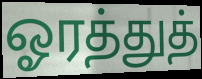
ஓரத்துத்